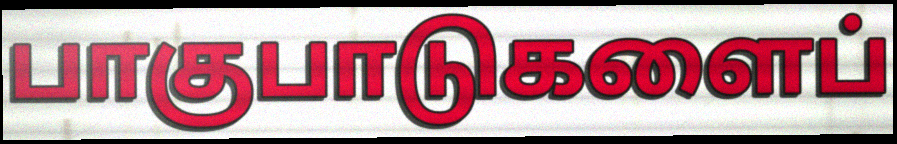
பாகுபாடுகளைப்